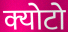
क्‍योटो